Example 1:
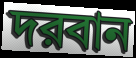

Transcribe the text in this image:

দরবান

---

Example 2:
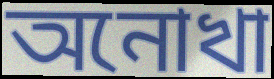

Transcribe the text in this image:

অনোখা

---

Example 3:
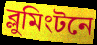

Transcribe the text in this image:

ব্লুমিংটনে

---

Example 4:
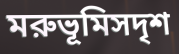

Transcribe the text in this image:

মরুভূমিসদৃশ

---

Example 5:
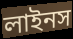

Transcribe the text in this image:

লাইনস